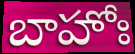
బాహోః